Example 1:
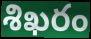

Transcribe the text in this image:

శిఖరం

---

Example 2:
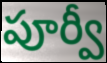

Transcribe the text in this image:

పూర్వీ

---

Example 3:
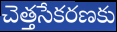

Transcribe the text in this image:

చెత్తసేకరణకు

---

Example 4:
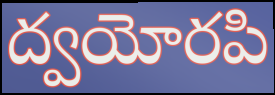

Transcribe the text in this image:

ద్వయోరపి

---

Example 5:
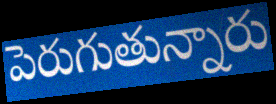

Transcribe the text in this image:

పెరుగుతున్నారు